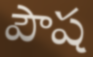
పౌష